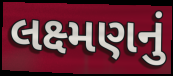
લક્ષ્મણનું